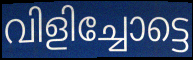
വിളിച്ചോട്ടെ